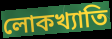
লোকখ্যাতি